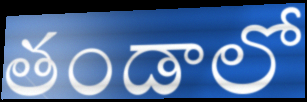
తండాలో